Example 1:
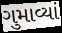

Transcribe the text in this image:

ગુમાવ્યાં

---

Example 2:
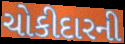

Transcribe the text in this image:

ચોકીદારની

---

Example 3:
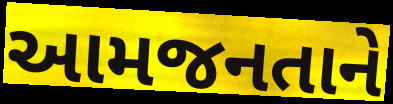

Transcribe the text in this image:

આમજનતાને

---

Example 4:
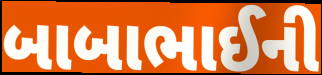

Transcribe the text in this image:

બાબાભાઈની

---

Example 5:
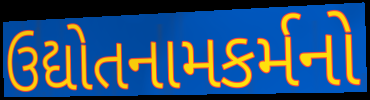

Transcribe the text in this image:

ઉદ્યોતનામકર્મનો